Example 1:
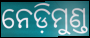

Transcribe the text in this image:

ନେଡ଼ିମୁଣ୍ଡ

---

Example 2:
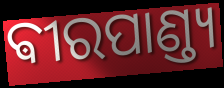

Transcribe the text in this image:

ଵୀରପାଣ୍ଡ୍ୟ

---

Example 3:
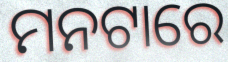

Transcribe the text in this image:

ମନଟାରେ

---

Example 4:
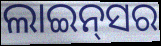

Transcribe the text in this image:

ଲାଇନ୍‍ସର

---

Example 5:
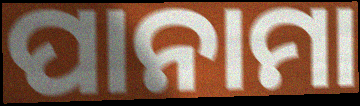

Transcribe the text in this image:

ପାନାମା